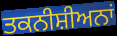
ਤਕਨੀਸ਼ੀਅਨਾਂ